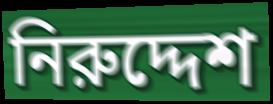
নিরুদ্দেশ